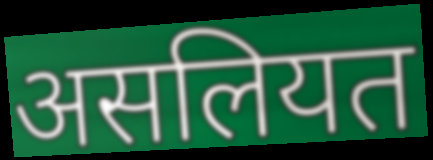
असलियत